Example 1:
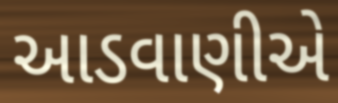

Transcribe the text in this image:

આડવાણીએ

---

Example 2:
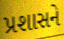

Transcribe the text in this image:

પ્રશાસને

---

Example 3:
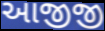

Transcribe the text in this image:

આજીજી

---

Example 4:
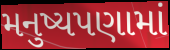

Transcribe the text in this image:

મનુષ્યપણામાં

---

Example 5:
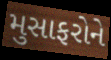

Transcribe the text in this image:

મુસાફરોને